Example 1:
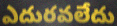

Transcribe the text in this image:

ఎదురవలేదు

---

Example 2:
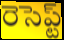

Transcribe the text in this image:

రెసెప్ట్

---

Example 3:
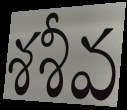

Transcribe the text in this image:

శశీవ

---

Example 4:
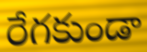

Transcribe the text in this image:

రేగకుండా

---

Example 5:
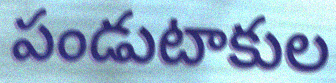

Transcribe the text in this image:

పండుటాకుల